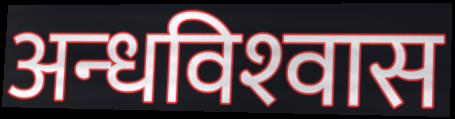
अन्‍धविश्‍वास